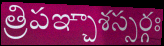
త్రిపఞ్చాశస్సర్గః